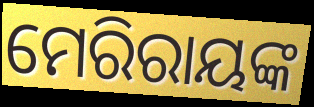
ମେରିରାୟଙ୍କ